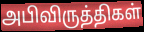
அபிவிருத்திகள்